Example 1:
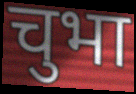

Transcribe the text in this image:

चुभा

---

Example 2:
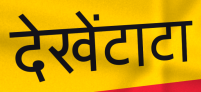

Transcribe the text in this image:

देखेंटाटा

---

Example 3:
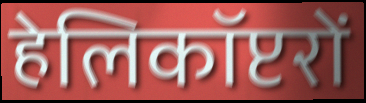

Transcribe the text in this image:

हेलिकॉप्टरों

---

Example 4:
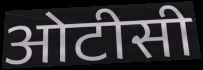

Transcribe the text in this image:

ओटीसी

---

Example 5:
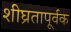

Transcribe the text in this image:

शीघ्रतापूर्वक